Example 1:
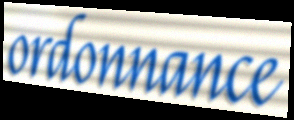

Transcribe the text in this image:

ordonnance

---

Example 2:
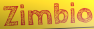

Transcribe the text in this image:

Zimbio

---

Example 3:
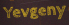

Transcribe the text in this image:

Yevgeny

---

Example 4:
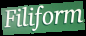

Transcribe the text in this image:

Filiform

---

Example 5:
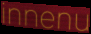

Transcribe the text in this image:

innenu